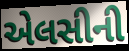
એલસીની